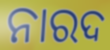
ନାରଦ